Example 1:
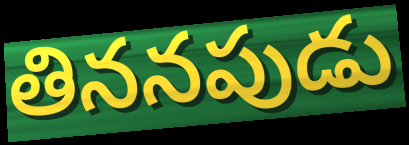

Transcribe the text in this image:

తిననపుడు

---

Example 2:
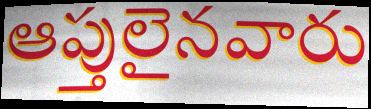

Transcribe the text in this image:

ఆప్తులైనవారు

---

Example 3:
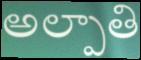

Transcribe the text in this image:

అల్పాతి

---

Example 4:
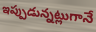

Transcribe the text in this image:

ఇప్పుడున్నట్లుగానే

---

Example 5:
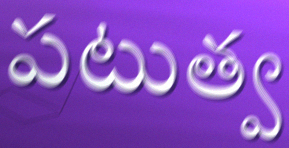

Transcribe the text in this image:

పటుత్వ